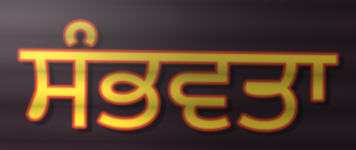
ਸੰਭਵਤਾ